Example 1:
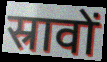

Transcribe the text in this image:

स्रावों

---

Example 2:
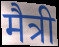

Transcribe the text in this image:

मैत्री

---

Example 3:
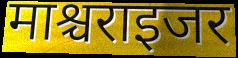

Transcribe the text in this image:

माश्चराइजर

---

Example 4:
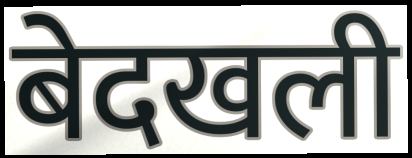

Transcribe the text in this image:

बेदखली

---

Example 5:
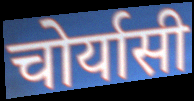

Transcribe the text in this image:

चोर्यासी